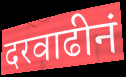
दरवाढीनं